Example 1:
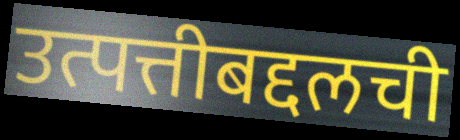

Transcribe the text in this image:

उत्पत्तीबद्दलची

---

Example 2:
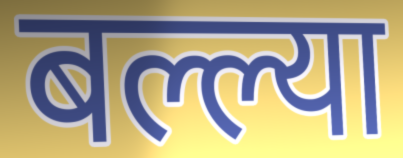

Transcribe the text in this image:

बल्ल्या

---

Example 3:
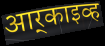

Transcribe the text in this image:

आर्काइव्ह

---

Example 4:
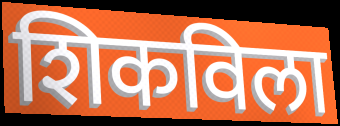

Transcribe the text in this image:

शिकविला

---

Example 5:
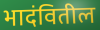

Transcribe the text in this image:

भादंवितील